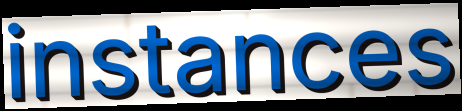
instances